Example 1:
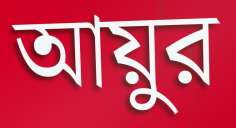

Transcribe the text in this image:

আয়ুর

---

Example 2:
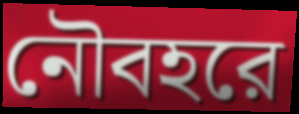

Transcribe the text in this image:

নৌবহরে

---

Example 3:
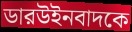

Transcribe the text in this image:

ডারউইনবাদকে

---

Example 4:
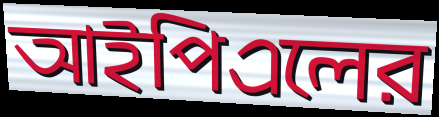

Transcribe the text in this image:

আইপিএলের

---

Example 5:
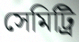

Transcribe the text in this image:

সেমিট্রি